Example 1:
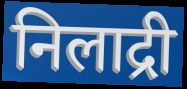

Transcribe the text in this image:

निलाद्री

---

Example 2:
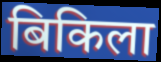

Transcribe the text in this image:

बिकिला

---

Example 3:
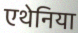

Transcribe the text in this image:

एथेनिया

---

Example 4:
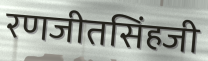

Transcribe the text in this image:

रणजीतसिंहजी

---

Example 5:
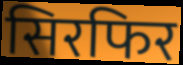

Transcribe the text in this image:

सिरफिर